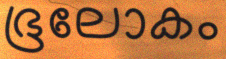
ഭൂലോകം